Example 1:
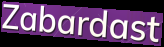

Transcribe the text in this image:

Zabardast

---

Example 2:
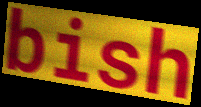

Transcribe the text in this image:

bish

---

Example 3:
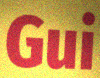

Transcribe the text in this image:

Gui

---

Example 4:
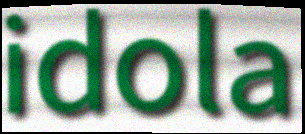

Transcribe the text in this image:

idola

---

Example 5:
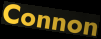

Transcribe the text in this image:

Connon